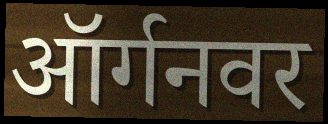
ऑर्गनवर